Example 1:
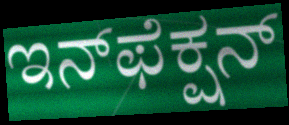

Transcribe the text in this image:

ಇನ್‌ಫೆಕ್ಷನ್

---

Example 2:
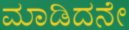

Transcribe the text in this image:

ಮಾಡಿದನೇ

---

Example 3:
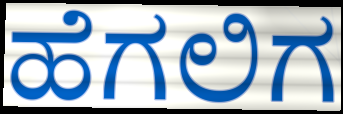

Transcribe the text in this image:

ಹೆಗಲಿಗ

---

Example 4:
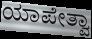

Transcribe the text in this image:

ಯಾಪೇತ್ವಾ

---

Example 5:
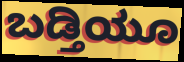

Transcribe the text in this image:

ಬಡ್ತಿಯೂ